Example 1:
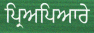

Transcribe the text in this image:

ਪ੍ਰਿਅਪਿਆਰੇ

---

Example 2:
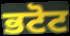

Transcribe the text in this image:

ਭਟੋਟ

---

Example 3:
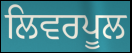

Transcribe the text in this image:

ਲਿਵਰਪੂਲ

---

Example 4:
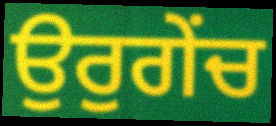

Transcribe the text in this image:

ਉਰੁਗੇਂਚ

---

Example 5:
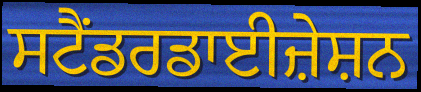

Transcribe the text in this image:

ਸਟੈਂਡਰਡਾਈਜ਼ੇਸ਼ਨ